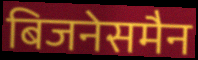
बिजनेसमैन